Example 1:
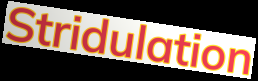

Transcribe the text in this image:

Stridulation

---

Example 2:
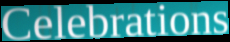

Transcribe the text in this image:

Celebrations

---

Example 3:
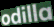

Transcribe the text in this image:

odilla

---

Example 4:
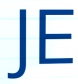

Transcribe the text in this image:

JE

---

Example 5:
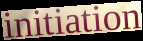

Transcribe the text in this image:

initiation